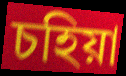
চহিয়া